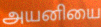
அயனியை